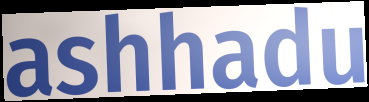
ashhadu